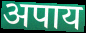
अपाय